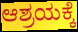
ಆಶ್ರಯಕ್ಕೆ